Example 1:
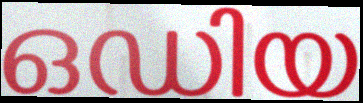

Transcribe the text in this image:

ഒഡിയ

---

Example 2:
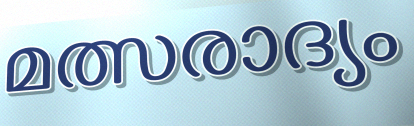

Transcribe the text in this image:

മത്സരാദ്യം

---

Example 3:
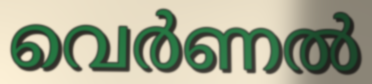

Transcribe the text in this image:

വെർണൽ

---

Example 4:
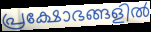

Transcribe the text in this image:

പ്രക്ഷോഭങ്ങളിൽ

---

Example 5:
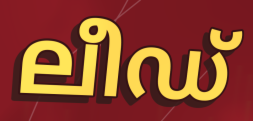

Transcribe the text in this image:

ലീഡ്